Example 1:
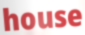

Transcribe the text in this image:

house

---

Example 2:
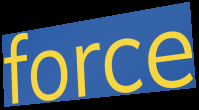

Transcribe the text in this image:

force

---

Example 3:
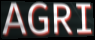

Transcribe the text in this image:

AGRI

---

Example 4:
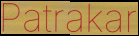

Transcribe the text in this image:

Patrakar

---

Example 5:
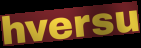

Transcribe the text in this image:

hversu